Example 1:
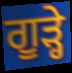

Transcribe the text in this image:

ਗੂੜ੍ਹੇ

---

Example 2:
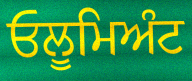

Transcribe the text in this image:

ਓਲੂਮਿਅੰਟ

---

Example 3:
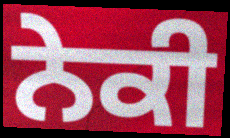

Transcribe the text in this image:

ਨੇਕੀ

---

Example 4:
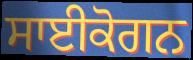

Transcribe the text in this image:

ਸਾਈਕੋਗਨ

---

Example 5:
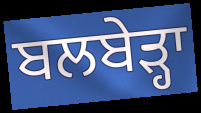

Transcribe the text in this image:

ਬਲਬੇੜ੍ਹਾ